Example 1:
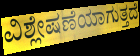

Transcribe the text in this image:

ವಿಶ್ಲೇಷಣೆಯಾಗುತ್ತದೆ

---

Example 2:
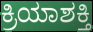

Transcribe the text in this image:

ಕ್ರಿಯಾಶಕ್ತಿ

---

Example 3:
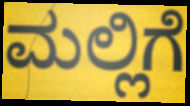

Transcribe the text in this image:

ಮಲ್ಲಿಗೆ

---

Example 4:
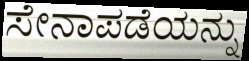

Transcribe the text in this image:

ಸೇನಾಪಡೆಯನ್ನು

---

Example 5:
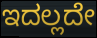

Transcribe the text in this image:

ಇದಲ್ಲದೇ